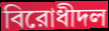
বিরোধীদল